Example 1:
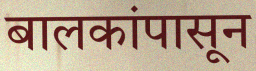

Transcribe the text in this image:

बालकांपासून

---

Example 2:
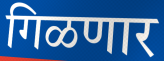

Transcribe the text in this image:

गिळणार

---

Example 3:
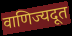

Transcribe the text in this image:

वाणिज्यदूत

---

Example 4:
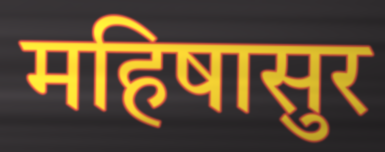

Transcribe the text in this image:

महिषासुर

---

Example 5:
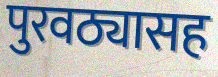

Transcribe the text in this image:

पुरवठ्यासह